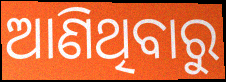
ଆଣିଥିବାରୁ